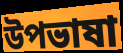
উপভাষা